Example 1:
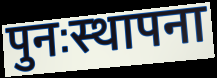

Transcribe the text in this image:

पुनःस्थापना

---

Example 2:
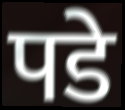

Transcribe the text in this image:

पडे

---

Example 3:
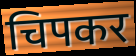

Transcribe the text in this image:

चिपकर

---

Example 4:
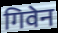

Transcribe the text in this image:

गिवेन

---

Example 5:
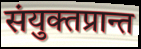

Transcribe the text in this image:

संयुक्तप्रान्त